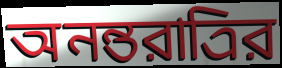
অনন্তরাত্রির